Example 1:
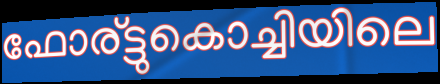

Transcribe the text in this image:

ഫോര്ട്ടുകൊച്ചിയിലെ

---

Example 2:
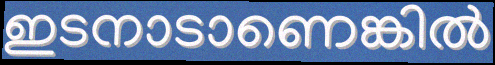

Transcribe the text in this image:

ഇടനാടാണെങ്കിൽ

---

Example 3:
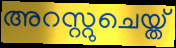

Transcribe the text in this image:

അറസ്റ്റുചെയ്ത്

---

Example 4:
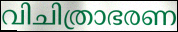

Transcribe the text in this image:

വിചിത്രാഭരണ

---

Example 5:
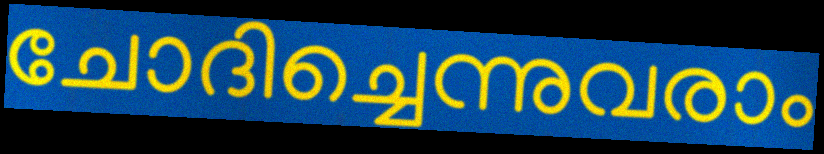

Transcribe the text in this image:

ചോദിച്ചെന്നുവരാം